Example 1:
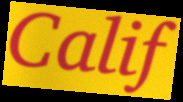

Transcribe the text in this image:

Calif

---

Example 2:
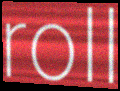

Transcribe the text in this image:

roll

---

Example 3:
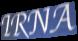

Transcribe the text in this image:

IRNA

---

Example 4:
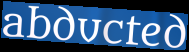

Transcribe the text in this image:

abducted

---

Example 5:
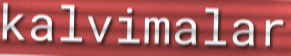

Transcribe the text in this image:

kalvimalar